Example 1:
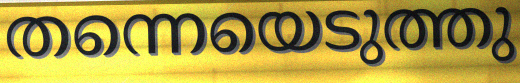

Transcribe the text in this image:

തന്നെയെടുത്തു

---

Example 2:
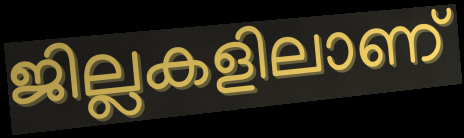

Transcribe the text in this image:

ജില്ലകളിലാണ്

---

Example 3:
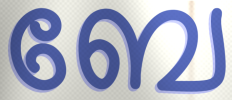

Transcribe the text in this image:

ബേ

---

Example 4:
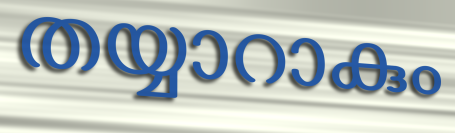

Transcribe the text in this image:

തയ്യാറാകും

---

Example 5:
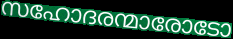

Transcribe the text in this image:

സഹോദരന്മാരോടോ